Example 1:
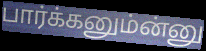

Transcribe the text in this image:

பார்க்கனும்ன்னு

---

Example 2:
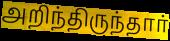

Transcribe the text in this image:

அறிந்திருந்தார்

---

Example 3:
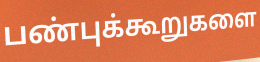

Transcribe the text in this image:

பண்புக்கூறுகளை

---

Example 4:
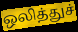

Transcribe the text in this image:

ஒலித்துச்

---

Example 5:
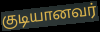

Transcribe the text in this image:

குடியானவர்